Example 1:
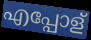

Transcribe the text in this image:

എപ്പോള്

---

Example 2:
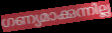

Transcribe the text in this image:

ഗണ്യമാക്കുന്നില്ല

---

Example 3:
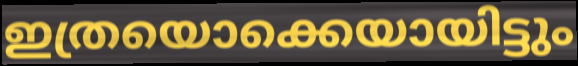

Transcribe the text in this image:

ഇത്രയൊക്കെയായിട്ടും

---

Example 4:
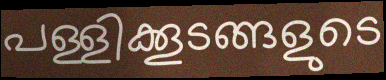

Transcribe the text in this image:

പള്ളിക്കൂടങ്ങളുടെ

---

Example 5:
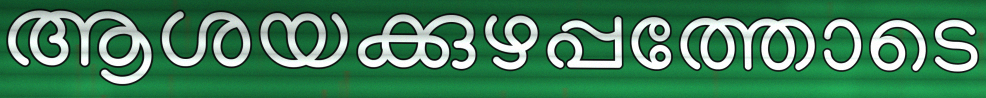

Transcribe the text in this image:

ആശയക്കുഴപ്പത്തോടെ